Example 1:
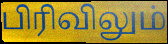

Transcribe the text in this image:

பிரிவிலும்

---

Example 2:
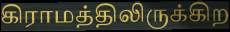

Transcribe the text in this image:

கிராமத்திலிருக்கிற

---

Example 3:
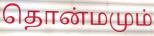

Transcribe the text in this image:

தொன்மமும்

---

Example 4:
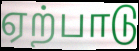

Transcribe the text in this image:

ஏற்பாடு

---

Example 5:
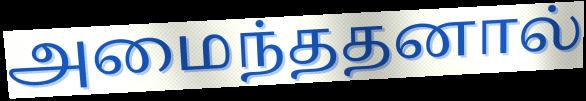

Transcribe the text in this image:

அமைந்ததனால்